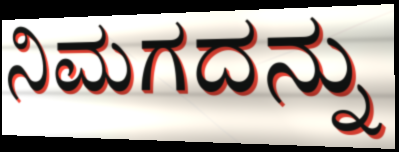
ನಿಮಗದನ್ನು